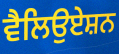
ਵੈਲਿਉਏਸ਼ਨ